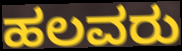
ಹಲವರು